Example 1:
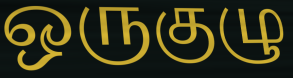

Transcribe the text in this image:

ஒருகுழு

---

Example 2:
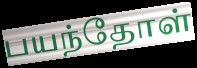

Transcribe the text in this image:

பயந்தோள்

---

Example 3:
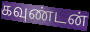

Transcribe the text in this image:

கவுண்டன்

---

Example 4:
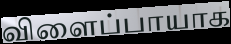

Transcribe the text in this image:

விளைப்பாயாக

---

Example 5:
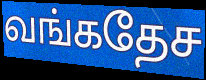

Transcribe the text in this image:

வங்கதேச